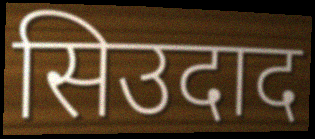
सिउदाद